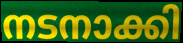
നടനാക്കി